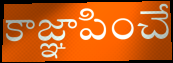
కాజ్ఞాపించే